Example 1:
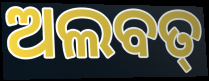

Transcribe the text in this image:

ଅଲବତ୍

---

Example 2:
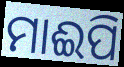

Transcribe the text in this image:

ମାଈପି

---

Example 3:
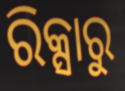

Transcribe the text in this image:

ରିକ୍ସାରୁ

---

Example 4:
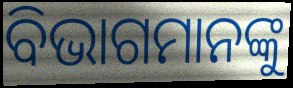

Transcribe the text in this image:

ବିଭାଗମାନଙ୍କୁ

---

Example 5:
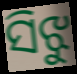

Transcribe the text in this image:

ସିଝୁ